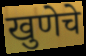
खुणेचे